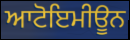
ਆਟੋਇਮੀਊਨ